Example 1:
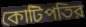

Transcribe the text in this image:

কোটিপতির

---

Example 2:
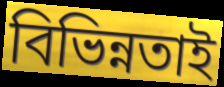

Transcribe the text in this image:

বিভিন্নতাই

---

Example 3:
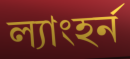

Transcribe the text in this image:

ল্যাংহর্ন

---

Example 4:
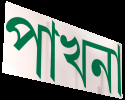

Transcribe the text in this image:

পাখনা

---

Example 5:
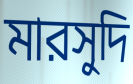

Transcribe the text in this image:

মারসুদি